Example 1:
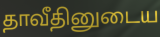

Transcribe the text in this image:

தாவீதினுடைய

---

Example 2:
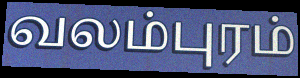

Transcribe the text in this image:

வலம்புரம்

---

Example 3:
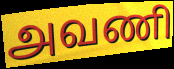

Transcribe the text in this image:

அவணி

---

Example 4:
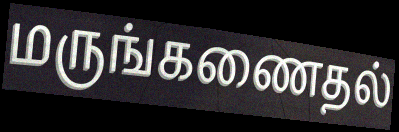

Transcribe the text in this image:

மருங்கணைதல்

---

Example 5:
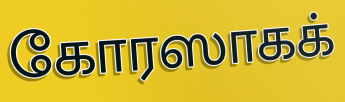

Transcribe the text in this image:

கோரஸாகக்